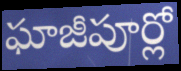
ఘాజీపూర్లో